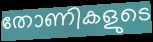
തോണികളുടെ